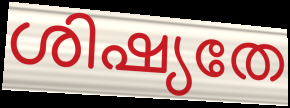
ശിഷ്യതേ